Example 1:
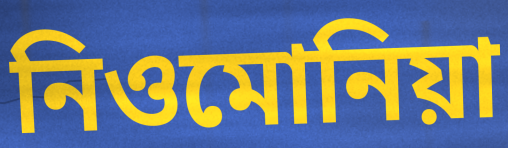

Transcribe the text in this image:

নিওমোনিয়া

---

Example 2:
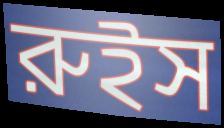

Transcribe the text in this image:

রুইস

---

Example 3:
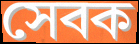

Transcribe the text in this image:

সেবক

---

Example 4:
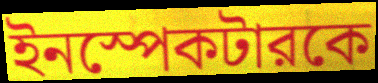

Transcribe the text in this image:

ইনস্পেকটারকে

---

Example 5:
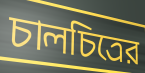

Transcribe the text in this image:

চালচিত্রের